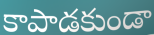
కాపాడకుండా